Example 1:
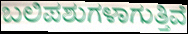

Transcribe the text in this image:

ಬಲಿಪಶುಗಳಾಗುತ್ತಿವೆ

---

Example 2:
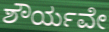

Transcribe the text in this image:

ಶೌರ್ಯವೇ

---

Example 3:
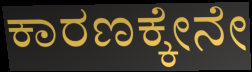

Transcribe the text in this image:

ಕಾರಣಕ್ಕೇನೇ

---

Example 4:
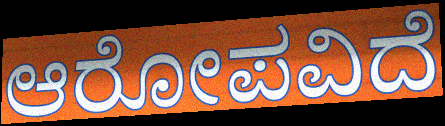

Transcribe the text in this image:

ಆರೋಪವಿದೆ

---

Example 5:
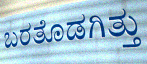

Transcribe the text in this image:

ಬರತೊಡಗಿತ್ತು